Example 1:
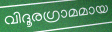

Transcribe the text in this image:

വിദൂരഗ്രാമമായ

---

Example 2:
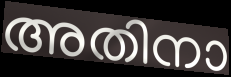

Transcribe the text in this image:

അതിനാ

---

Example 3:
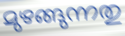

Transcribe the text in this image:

മുഴങ്ങുന്നതു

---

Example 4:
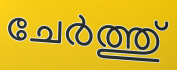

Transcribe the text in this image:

ചേർത്തു്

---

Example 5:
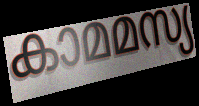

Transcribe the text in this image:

കാമമസ്യ